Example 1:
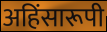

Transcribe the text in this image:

अहिंसारूपी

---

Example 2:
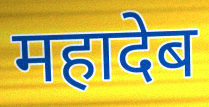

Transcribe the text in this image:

महादेब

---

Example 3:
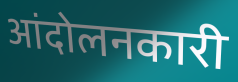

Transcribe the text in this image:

आंदोलनकारी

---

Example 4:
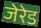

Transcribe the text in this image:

जेरेड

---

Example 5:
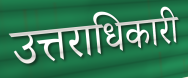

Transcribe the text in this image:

उत्तराधिकारी